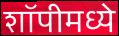
शॉपीमध्ये